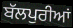
ਬੱਲਪੁਰੀਆਂ